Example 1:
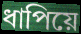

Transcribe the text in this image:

ধাপিয়ে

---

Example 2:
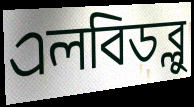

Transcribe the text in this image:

এলবিডব্লু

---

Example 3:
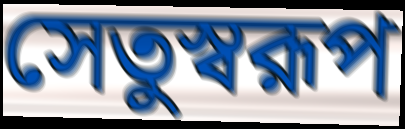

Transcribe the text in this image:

সেতুস্বরূপ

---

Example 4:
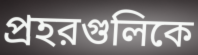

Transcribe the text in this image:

প্রহরগুলিকে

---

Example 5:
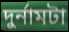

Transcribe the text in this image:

দুর্নামটা